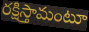
రక్షిస్తామంటూ